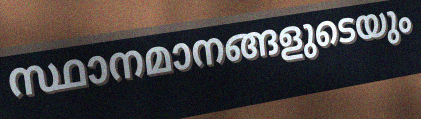
സ്ഥാനമാനങ്ങളുടെയും